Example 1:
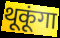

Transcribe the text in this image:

थूकूंगा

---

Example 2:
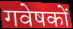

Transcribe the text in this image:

गवेषकों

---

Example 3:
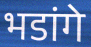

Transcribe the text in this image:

भडांगे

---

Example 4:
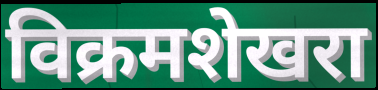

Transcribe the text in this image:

विक्रमशेखरा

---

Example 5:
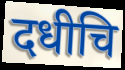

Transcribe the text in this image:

दधीचि